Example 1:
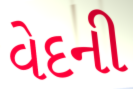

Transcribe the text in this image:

વેદની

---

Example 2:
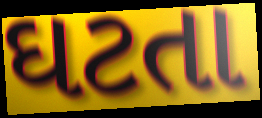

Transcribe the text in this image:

ઘટતા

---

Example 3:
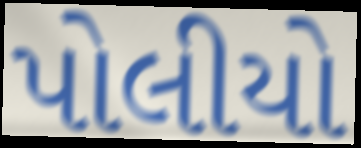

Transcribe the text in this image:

પોલીયો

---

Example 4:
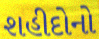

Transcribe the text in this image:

શહીદોનો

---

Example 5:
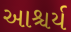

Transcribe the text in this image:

આશ્ચર્ય